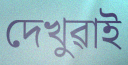
দেখুৱাই